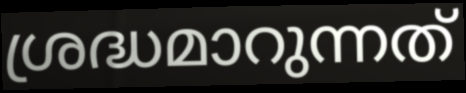
ശ്രദ്ധമാറുന്നത്